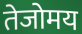
तेजोमय